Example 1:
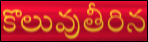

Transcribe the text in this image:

కొలువుతీరిన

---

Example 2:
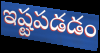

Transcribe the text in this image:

ఇష్టపడడం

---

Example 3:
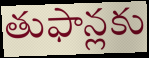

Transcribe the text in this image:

తుఫాన్లకు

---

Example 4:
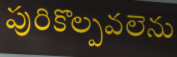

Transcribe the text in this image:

పురికొల్పవలెను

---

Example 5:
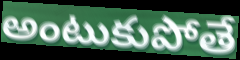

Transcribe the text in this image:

అంటుకుపోతే